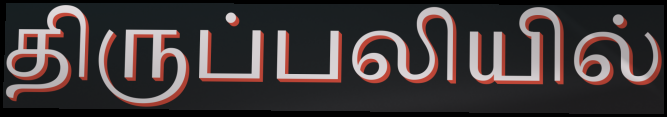
திருப்பலியில்